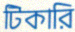
টিকারি